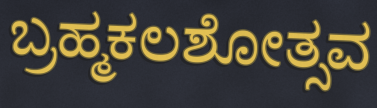
ಬ್ರಹ್ಮಕಲಶೋತ್ಸವ